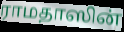
ராமதாஸின்